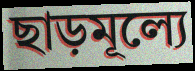
ছাড়মূল্যে